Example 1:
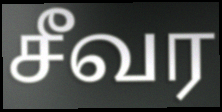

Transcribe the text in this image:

சீவர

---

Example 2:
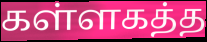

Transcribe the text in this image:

கள்ளகத்த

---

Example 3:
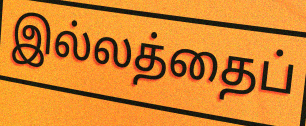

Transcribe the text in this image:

இல்லத்தைப்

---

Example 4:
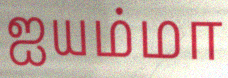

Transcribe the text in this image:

ஐயம்மா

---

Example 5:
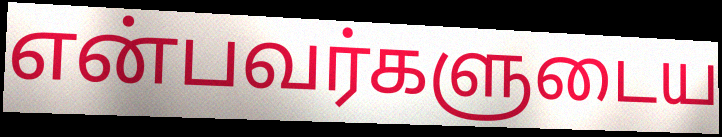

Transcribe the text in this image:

என்பவர்களுடைய